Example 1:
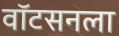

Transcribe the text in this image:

वॉटसनला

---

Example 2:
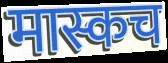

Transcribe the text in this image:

मास्कच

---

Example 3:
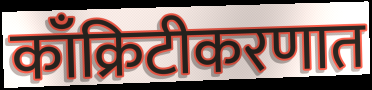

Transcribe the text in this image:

काँक्रिटीकरणात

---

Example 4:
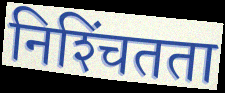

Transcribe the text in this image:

निश्चिंतता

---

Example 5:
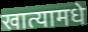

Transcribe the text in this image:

खात्यामधे